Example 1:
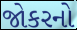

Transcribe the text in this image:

જોકરનો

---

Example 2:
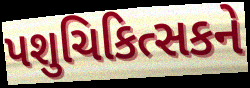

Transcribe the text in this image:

પશુચિકિત્સકને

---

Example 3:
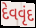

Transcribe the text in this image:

દેવવૃંદ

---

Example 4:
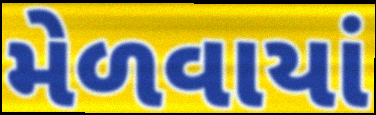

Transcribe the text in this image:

મેળવાયાં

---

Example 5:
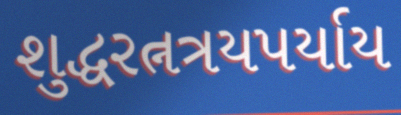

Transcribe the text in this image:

શુદ્ધરત્નત્રયપર્યાય